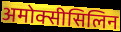
अमोक्सीसिलिन